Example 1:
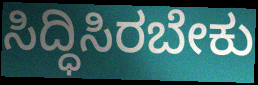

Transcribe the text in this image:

ಸಿದ್ಧಿಸಿರಬೇಕು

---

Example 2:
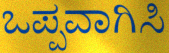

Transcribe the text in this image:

ಒಪ್ಪವಾಗಿಸಿ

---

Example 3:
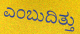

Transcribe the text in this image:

ಎಂಬುದಿತ್ತು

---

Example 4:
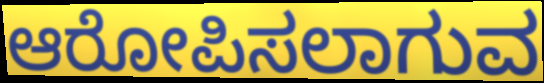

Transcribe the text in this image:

ಆರೋಪಿಸಲಾಗುವ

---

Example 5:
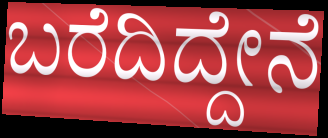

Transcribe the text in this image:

ಬರೆದಿದ್ದೇನೆ